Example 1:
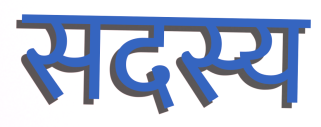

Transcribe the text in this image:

सदस्‍य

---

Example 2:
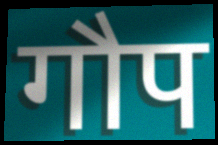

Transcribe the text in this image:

गौप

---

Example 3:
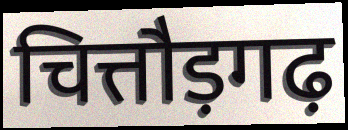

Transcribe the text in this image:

चित्तौड़गढ़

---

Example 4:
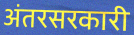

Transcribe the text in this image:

अंतरसरकारी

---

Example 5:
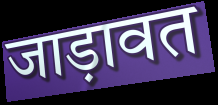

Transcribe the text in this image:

जाड़ावत